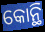
କୋନ୍ଥି